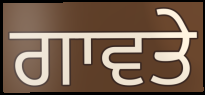
ਗਾਵਤੇ